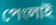
পেংলাই